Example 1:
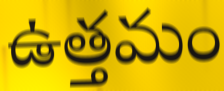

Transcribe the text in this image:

ఉత్తమం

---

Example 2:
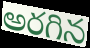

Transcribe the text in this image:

అరగిన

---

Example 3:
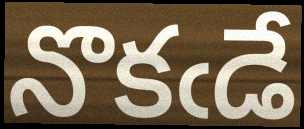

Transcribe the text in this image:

నొకఁడే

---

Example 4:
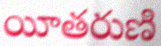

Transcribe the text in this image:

యీతరుణి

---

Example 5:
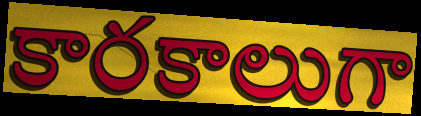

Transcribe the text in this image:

కారకాలుగా